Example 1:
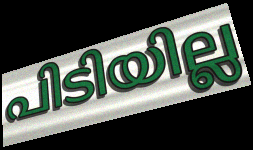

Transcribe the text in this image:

പിടിയില്ല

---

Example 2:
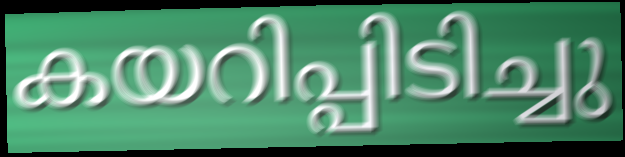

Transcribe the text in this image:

കയറിപ്പിടിച്ചു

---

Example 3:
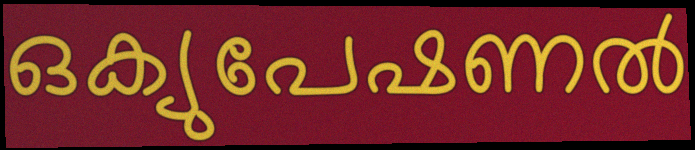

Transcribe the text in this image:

ഒക്യുപേഷണൽ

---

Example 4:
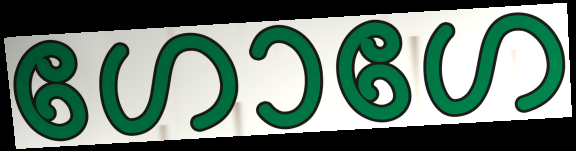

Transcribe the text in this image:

ഗോഗേ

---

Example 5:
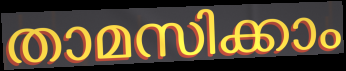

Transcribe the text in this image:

താമസിക്കാം